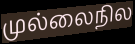
முல்லைநில